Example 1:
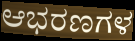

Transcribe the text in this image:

ಆಭರಣಗಳ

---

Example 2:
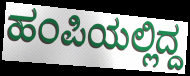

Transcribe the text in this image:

ಹಂಪಿಯಲ್ಲಿದ್ದ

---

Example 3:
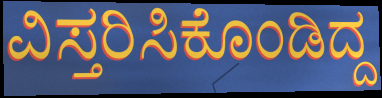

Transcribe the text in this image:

ವಿಸ್ತರಿಸಿಕೊಂಡಿದ್ದ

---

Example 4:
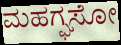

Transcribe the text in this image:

ಮಹಗ್ಘಸೋ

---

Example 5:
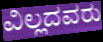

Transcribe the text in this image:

ವಿಲ್ಲದವರು